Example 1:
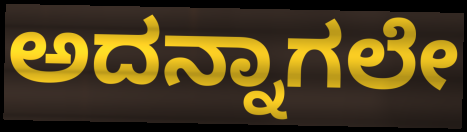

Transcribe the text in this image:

ಅದನ್ನಾಗಲೇ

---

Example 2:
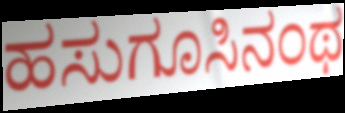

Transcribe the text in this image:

ಹಸುಗೂಸಿನಂಥ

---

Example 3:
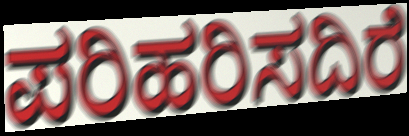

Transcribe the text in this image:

ಪರಿಹರಿಸದಿರೆ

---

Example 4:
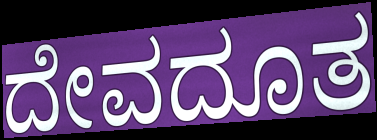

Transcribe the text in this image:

ದೇವದೂತ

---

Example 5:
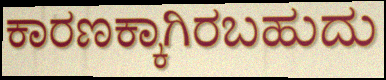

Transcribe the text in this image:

ಕಾರಣಕ್ಕಾಗಿರಬಹುದು